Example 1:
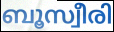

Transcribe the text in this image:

ബൂസ്വീരി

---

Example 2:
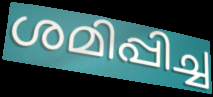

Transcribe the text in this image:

ശമിപ്പിച്ച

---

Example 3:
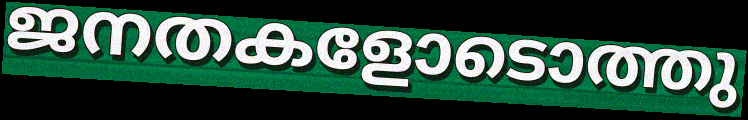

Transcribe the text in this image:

ജനതകളോടൊത്തു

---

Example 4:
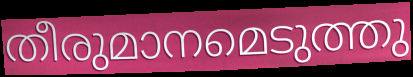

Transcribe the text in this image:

തീരുമാനമെടുത്തു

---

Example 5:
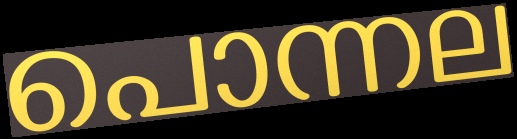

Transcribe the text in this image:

പൊന്നല